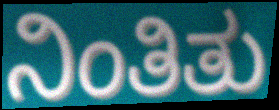
ನಿಂತಿತು